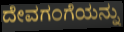
ದೇವಗಂಗೆಯನ್ನು